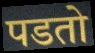
पडतो